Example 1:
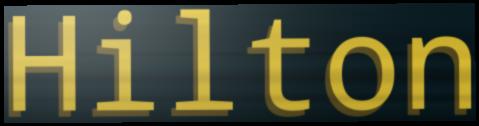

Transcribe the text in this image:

Hilton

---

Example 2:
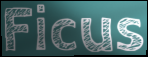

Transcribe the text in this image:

Ficus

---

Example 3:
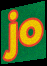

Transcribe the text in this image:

jo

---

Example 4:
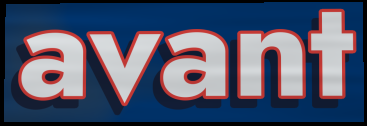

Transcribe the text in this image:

avant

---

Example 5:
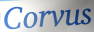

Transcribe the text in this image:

Corvus